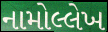
નામોલ્લેખ